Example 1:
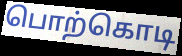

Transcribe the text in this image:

பொற்கொடி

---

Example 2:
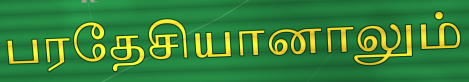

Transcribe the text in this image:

பரதேசியானாலும்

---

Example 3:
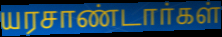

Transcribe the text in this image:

யரசாண்டார்கள்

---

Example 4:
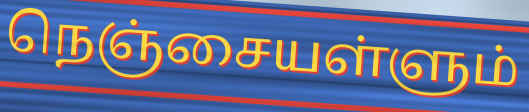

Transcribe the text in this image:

நெஞ்சையள்ளும்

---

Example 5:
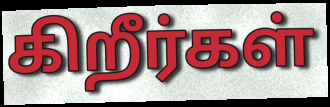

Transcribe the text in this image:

கிறீர்கள்